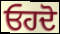
ਓਹਦੋ